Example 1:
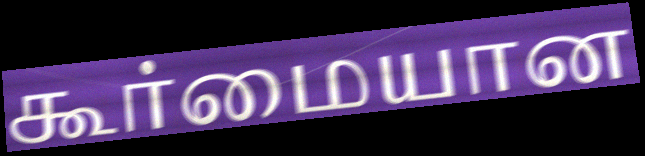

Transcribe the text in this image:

கூர்மையான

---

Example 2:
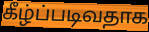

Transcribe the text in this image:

கீழ்ப்படிவதாக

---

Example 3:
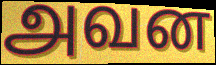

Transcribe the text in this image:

அவன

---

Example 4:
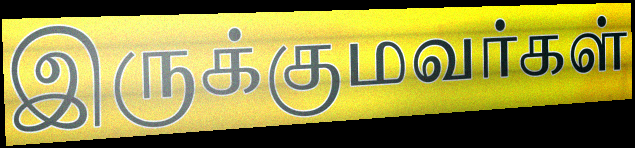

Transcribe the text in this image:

இருக்குமவர்கள்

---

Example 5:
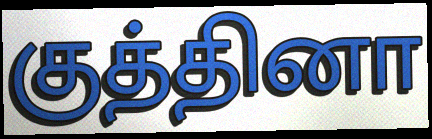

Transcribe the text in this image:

குத்தினா